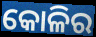
କୋଳିର